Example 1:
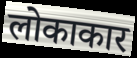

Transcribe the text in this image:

लोकाकार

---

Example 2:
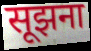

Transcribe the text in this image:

सूझना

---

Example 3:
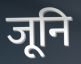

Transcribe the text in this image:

जूनि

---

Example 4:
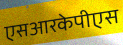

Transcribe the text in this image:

एसआरकेपीएस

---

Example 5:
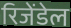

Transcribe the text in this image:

रिजेंडेल